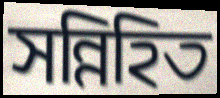
সন্নিহিত